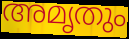
അമൃതും